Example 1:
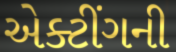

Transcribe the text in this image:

એક્ટીંગની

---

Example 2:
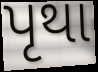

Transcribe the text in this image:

પૃથા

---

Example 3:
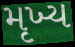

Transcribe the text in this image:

મૃખ્ય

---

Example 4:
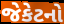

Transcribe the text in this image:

જેકેટનો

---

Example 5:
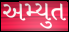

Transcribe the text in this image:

અમ્યુત